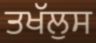
ਤਖੱਲੁਸ